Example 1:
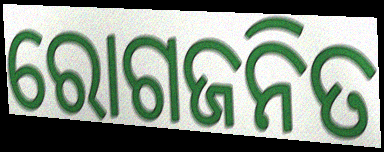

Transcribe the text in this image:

ରୋଗଜନିତ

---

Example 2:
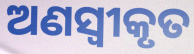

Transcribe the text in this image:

ଅଣସ୍ୱୀକୃତ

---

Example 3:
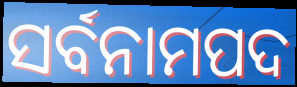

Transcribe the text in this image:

ସର୍ବନାମପଦ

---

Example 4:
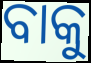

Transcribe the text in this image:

ବାକୁ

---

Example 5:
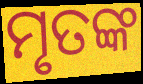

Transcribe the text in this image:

ମୃତଙ୍କ